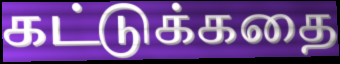
கட்டுக்கதை